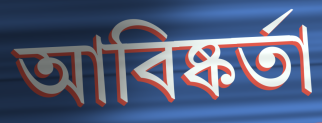
আবিষ্কর্তা